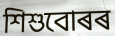
শিশুবোৰৰ